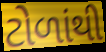
ટોળાંથી